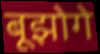
बूझोगे